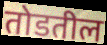
तोडतील